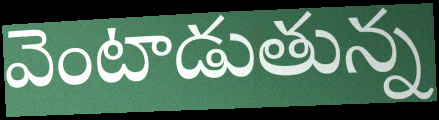
వెంటాడుతున్న